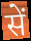
सें